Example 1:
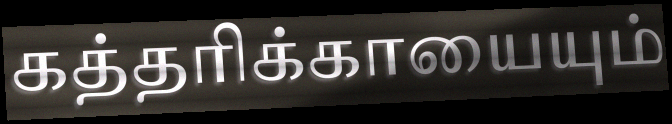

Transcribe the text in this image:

கத்தரிக்காயையும்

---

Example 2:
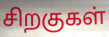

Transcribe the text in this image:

சிறகுகள்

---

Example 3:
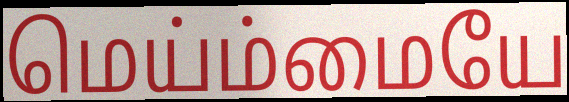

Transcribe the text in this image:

மெய்ம்மையே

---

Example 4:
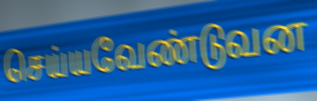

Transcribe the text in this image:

செய்யவேண்டுவன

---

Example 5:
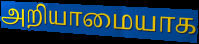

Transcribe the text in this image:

அறியாமையாக